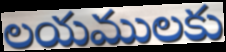
లయములకు